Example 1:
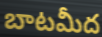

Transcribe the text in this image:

బాటమీద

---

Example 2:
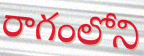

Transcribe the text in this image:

రాగంలోని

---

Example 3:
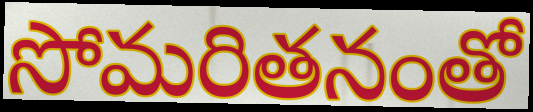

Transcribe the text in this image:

సోమరితనంతో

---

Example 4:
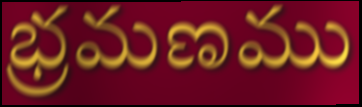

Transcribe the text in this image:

భ్రమణము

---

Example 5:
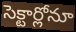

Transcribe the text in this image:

సెక్టార్లోనూ